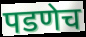
पडणेच